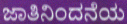
ಜಾತಿನಿಂದನೆಯ